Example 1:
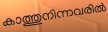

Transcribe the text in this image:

കാത്തുനിന്നവരിൽ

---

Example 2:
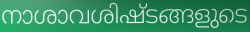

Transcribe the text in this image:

നാശാവശിഷ്ടങ്ങളുടെ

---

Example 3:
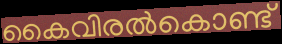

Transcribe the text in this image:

കൈവിരൽകൊണ്ട്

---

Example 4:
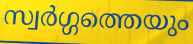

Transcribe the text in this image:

സ്വർഗ്ഗത്തെയും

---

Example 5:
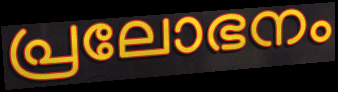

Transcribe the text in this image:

പ്രലോഭനം